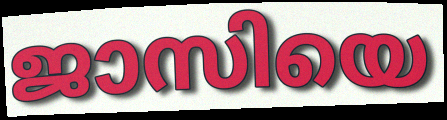
ജാസിയെ